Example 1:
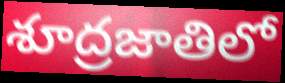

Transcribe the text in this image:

శూద్రజాతిలో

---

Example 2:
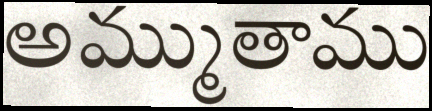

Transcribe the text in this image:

అమ్ముతాము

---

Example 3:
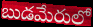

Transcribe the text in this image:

బుడమేరులో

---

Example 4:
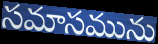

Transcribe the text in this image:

సమాసమును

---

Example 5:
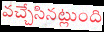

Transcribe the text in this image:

వచ్చేసినట్లుంది